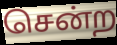
சென்ற